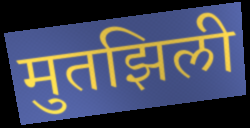
मुतझिली